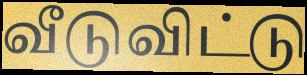
வீடுவிட்டு